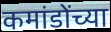
कमांडोंच्या